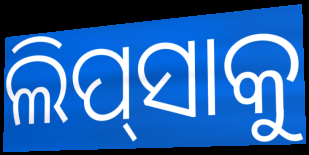
ଲିପ୍‍ସାକୁ